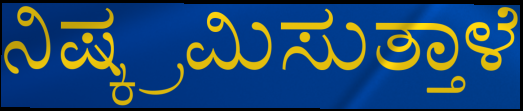
ನಿಷ್ಕ್ರಮಿಸುತ್ತಾಳೆ